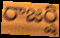
రాజర్షి